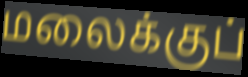
மலைக்குப்